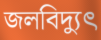
জলবিদ্যুৎ